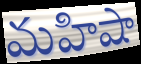
మహిషా